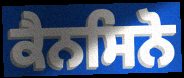
ਕੈਨਸਿਨੋ